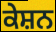
ਕੇਸ਼ਨ